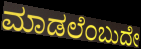
ಮಾಡಲೆಂಬುದೇ